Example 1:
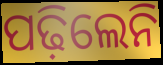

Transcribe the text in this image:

ପଢ଼ିଲେନି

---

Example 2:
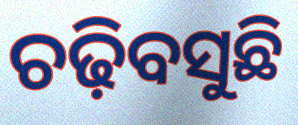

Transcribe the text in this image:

ଚଢ଼ିବସୁଛି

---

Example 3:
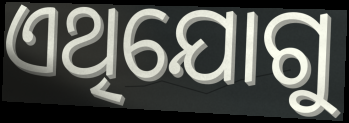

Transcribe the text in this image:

ଏଥିଯୋଗୁ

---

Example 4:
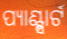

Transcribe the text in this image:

ପ୍ୟାଣ୍ଟ୍ସାର୍ଟ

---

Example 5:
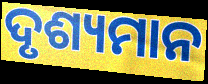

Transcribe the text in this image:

ଦୃଶ୍ୟମାନ